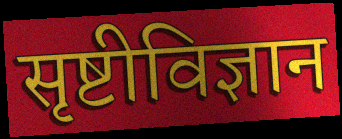
सृष्टीविज्ञान